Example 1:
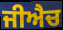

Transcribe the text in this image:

ਜੀਐਚ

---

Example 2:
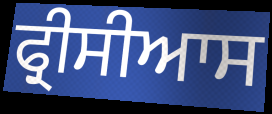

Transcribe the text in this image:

ਫ੍ਰੀਸੀਆਸ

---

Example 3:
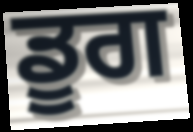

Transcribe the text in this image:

ਡੂਗ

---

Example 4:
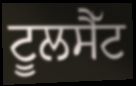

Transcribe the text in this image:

ਟੂਲਸੈੱਟ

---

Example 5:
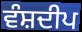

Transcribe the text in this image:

ਵੰਸ਼ਦੀਪ